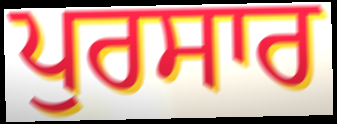
ਪੁਰਸਾਰ